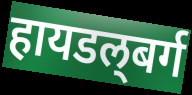
हायडल्‌बर्ग